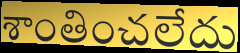
శాంతించలేదు